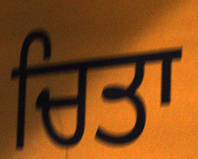
ਚਿਤਾ